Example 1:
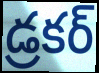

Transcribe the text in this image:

డ్రకర్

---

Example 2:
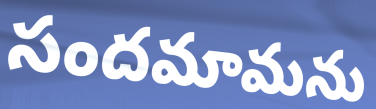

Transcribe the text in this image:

సందమామను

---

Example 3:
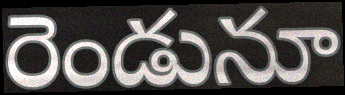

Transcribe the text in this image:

రెండునూ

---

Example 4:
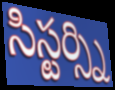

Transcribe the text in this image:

సిస్టర్స్ని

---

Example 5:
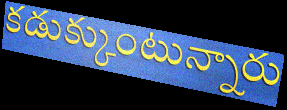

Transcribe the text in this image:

కడుక్కుంటున్నారు